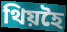
থিয়হৈ